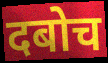
दबोच